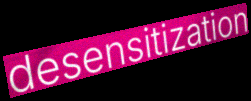
desensitization